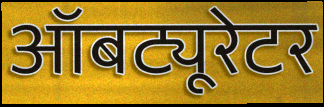
ऑबट्यूरेटर